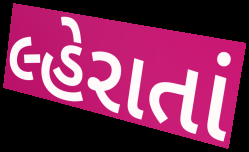
લ્હેરાતાં